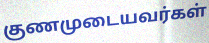
குணமுடையவர்கள்